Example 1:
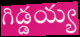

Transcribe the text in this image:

గిడ్డయ్య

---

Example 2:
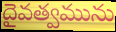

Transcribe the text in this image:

దైవత్వమును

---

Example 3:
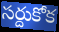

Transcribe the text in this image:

సర్దుకోక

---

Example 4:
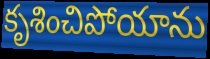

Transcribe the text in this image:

కృశించిపోయాను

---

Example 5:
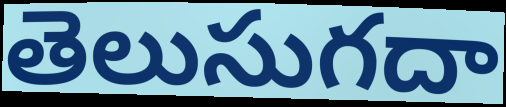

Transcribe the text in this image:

తెలుసుగదా